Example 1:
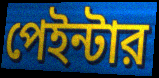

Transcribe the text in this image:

পেইন্টার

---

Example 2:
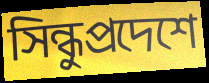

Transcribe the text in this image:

সিন্ধুপ্রদেশে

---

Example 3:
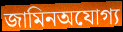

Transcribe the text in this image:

জামিনঅযোগ্য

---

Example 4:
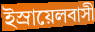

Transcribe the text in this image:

ইস্রায়েলবাসী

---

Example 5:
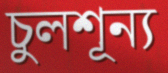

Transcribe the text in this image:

চুলশূন্য